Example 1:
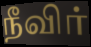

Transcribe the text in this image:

நீவிர்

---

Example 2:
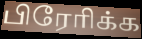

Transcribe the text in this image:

பிரேரிக்க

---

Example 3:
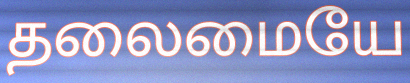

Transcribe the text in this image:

தலைமையே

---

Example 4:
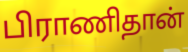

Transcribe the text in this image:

பிராணிதான்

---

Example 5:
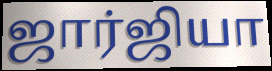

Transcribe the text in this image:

ஜார்ஜியா